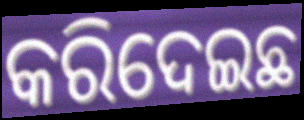
କରିଦେଇଛ